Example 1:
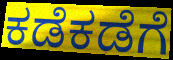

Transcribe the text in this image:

ಕಡೆಕಡೆಗೆ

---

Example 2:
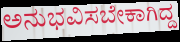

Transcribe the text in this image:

ಅನುಭವಿಸಬೇಕಾಗಿದ್ದ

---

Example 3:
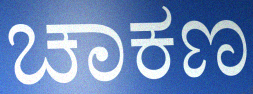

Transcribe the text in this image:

ಚಾಕಣ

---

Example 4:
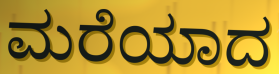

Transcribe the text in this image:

ಮರೆಯಾದ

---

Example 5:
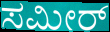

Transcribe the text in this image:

ಸಮೀರ್